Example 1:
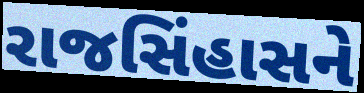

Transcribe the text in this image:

રાજસિંહાસને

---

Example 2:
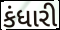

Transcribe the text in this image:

કંધારી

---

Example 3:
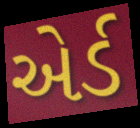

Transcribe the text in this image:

એર્ડ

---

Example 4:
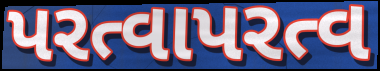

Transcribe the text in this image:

પરત્વાપરત્વ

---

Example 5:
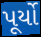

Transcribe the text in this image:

પૂર્યો